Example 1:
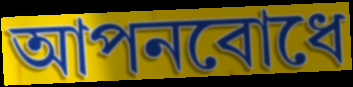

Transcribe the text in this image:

আপনবোধে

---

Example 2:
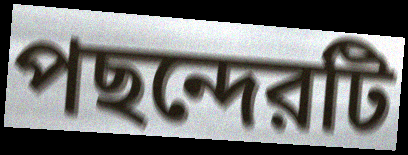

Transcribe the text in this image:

পছন্দেরটি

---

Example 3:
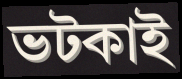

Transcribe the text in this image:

ভটকাই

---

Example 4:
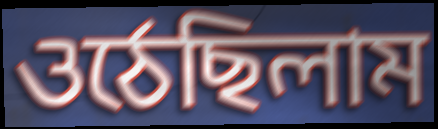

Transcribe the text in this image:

ওঠেছিলাম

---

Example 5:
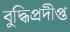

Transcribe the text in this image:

বুদ্ধিপ্রদীপ্ত